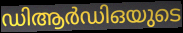
ഡിആർഡിഒയുടെ